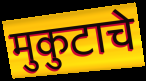
मुकुटाचे